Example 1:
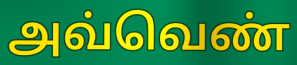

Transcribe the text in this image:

அவ்வெண்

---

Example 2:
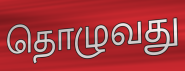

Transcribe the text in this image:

தொழுவது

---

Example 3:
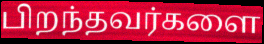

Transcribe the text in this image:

பிறந்தவர்களை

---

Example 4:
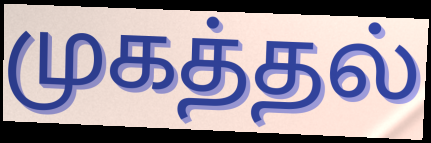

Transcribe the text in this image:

முகத்தல்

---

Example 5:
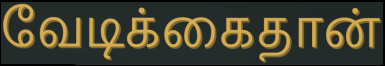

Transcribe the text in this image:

வேடிக்கைதான்